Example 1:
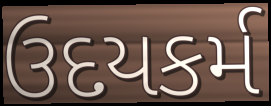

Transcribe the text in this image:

ઉદયકર્મ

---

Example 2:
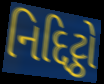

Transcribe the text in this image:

નિદ્દિટ્ઠો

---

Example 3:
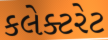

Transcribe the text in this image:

કલેક્ટરેટ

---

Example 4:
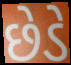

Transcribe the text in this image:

છેડે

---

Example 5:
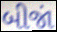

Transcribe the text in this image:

બીજાં